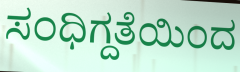
ಸಂಧಿಗ್ದತೆಯಿಂದ